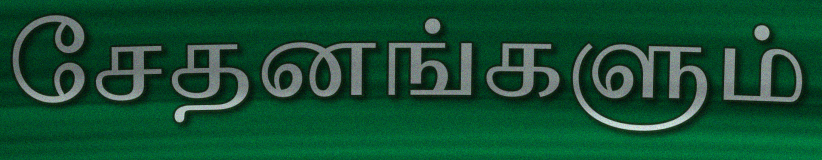
சேதனங்களும்